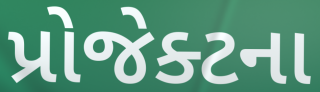
પ્રોજેક્ટના